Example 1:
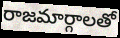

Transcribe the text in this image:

రాజమార్గాలతో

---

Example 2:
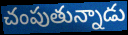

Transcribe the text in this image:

చంపుతున్నాడు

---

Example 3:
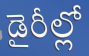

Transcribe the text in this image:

డైరీల్లో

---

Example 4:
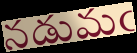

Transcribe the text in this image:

నడుమఁ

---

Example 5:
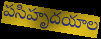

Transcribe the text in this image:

పసిహృదయాల